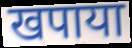
खपाया